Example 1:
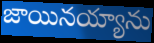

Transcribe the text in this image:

జాయినయ్యాను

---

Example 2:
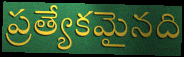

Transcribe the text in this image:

ప్రత్యేకమైనది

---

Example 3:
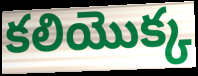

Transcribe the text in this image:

కలియొక్క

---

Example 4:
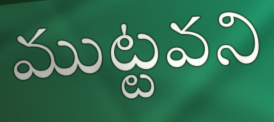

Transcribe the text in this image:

ముట్టవని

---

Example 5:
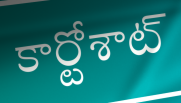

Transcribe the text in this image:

కార్టోశాట్